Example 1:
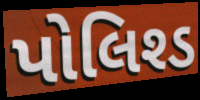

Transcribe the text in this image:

પોલિશ્ડ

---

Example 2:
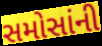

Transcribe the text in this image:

સમોસાંની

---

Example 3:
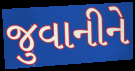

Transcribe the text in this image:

જુવાનીને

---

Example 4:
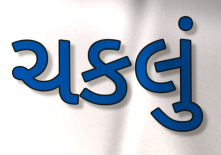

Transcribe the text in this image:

ચકલું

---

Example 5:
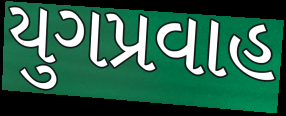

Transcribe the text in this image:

યુગપ્રવાહ